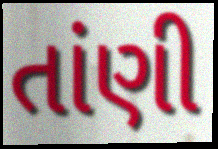
તાંણી